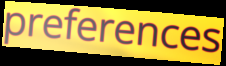
preferences